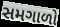
સમગાળો